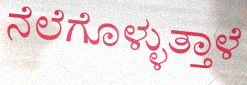
ನೆಲೆಗೊಳ್ಳುತ್ತಾಳೆ